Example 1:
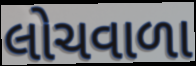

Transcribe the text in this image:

લોચવાળા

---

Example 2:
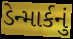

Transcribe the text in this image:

ડેન્માર્કનું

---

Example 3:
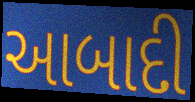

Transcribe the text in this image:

આબાદી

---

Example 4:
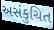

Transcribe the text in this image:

અસંકુચિત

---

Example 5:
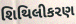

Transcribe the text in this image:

શિથિલીકરણ